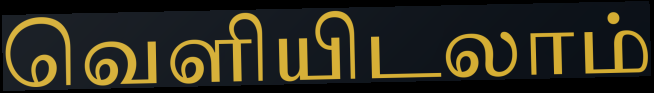
வெளியிடலாம்